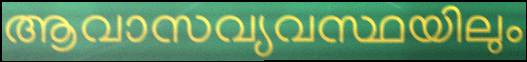
ആവാസവ്യവസ്ഥയിലും